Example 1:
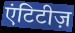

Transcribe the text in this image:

एंटिटीज़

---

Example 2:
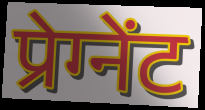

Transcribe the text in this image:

प्रेग्‍नेंट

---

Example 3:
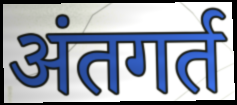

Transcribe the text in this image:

अंतगर्त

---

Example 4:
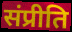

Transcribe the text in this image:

संप्रीति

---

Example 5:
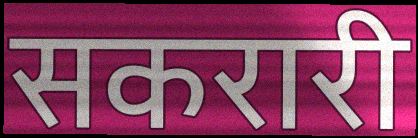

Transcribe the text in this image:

सकरारी